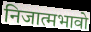
निजात्मभावो